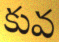
కువ